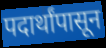
पदार्थांपासून